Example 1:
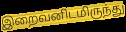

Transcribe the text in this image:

இறைவனிடமிருந்து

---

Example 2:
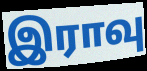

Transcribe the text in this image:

இராவு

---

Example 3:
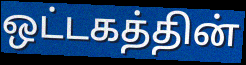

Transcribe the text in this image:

ஒட்டகத்தின்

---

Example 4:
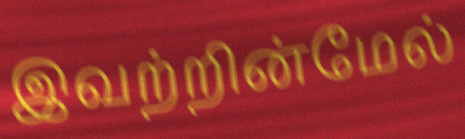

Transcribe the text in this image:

இவற்றின்மேல்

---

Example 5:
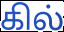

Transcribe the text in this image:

கில்